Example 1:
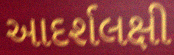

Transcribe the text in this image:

આદર્શલક્ષી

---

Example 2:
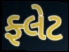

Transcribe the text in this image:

ફ્લેટ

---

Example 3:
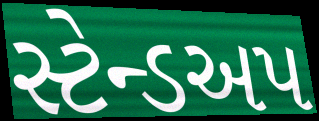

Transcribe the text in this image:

સ્ટેન્ડઅપ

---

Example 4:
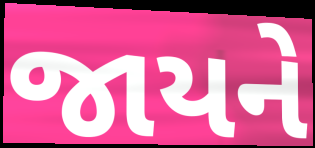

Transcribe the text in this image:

જાયને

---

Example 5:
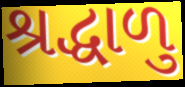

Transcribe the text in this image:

શ્રદ્ધાળુ